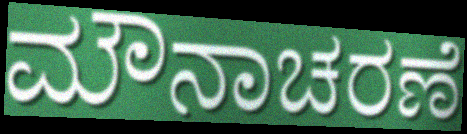
ಮೌನಾಚರಣೆ